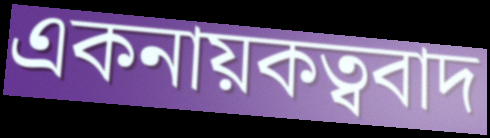
একনায়কত্ববাদ